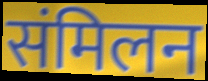
संमिलन